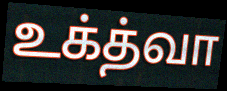
உக்த்வா